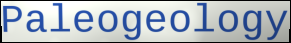
Paleogeology